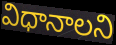
విధానాలని